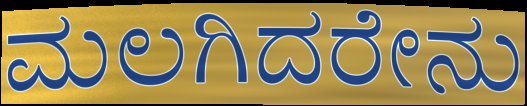
ಮಲಗಿದರೇನು